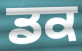
ਡਕ